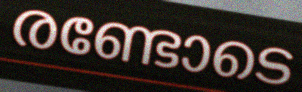
രണ്ടോടെ